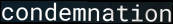
condemnation